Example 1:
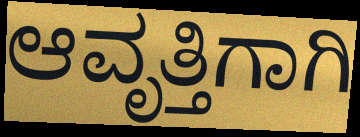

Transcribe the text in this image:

ಆವೃತ್ತಿಗಾಗಿ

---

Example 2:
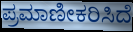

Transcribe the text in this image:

ಪ್ರಮಾಣೀಕರಿಸಿದೆ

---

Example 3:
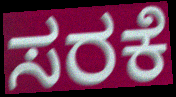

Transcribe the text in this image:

ಸರಕೆ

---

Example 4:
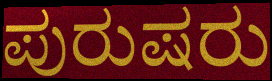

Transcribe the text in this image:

ಪುರುಷರು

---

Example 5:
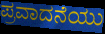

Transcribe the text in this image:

ಪ್ರವಾದನೆಯು